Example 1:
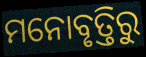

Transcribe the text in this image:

ମନୋବୃତ୍ତିରୁ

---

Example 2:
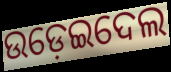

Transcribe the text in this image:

ଉଡ଼େଇଦେଲ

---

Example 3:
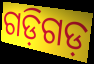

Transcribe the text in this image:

ଗଡ଼ିଗଡ଼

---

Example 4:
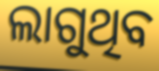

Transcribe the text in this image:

ଲାଗୁଥିବ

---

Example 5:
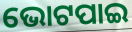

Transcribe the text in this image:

ଭୋଟପାଇ